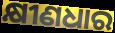
କ୍ଷୀଣଧାର